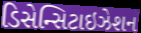
ડિસેન્સિટાઇઝેશન